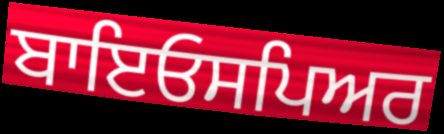
ਬਾਇਓਸਪਿਅਰ